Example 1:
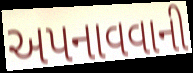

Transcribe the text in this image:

અપનાવવાની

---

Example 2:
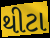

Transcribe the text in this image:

થીટા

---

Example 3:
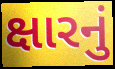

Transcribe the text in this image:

ક્ષારનું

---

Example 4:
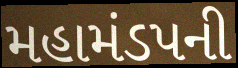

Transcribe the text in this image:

મહામંડપની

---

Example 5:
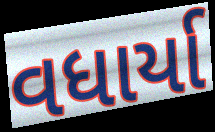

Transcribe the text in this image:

વધાર્યા